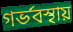
গর্ভবস্থায়